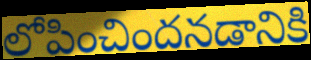
లోపించిందనడానికి